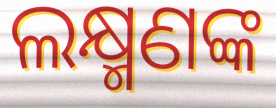
ଲକ୍ଷ୍ମଣଙ୍କ